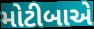
મોટીબાએ